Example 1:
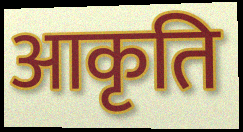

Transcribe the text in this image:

आकृति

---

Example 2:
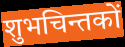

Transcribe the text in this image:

शुभचिन्तकों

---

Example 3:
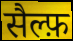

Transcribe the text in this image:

सैल्फ़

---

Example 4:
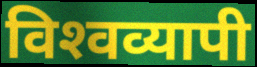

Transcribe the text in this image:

विश्‍वव्यापी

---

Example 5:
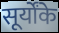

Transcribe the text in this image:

सूर्योंके